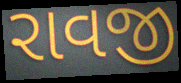
રાવજી